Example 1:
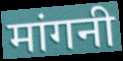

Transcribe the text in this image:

मांगनी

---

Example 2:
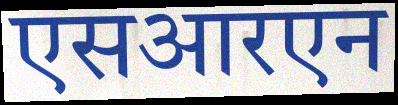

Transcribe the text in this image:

एसआरएन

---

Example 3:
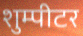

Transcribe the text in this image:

शुम्पीटर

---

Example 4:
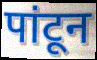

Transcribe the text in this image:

पांटून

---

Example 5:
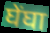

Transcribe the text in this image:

घेंघा